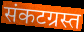
संकटग्रस्त